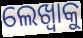
ଲେଖ୍ବାକୁ